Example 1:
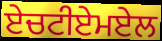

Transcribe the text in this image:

ਏਚਟੀਏਮਏਲ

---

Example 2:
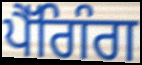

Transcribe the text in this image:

ਪੈੱਗਿੰਗ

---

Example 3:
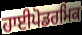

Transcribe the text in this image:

ਹਾਈਪੋਡਰਮਿਕ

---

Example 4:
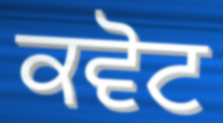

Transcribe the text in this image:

ਕਵੋਟ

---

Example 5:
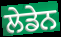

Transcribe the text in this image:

ਲੇਡੇਨ